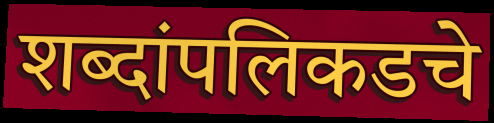
शब्दांपलिकडचे